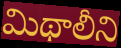
మిథాలీని